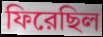
ফিরেছিল